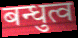
बन्धुत्व